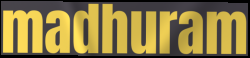
madhuram